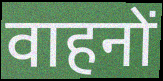
वाहनों